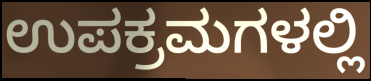
ಉಪಕ್ರಮಗಳಲ್ಲಿ